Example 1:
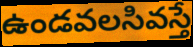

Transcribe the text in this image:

ఉండవలసివస్తే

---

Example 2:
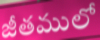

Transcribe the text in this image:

జీతములో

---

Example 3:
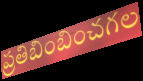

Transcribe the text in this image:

ప్రతిబింబించగల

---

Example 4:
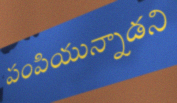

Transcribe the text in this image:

పంపియున్నాడని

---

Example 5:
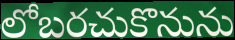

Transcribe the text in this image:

లోబరచుకొనును